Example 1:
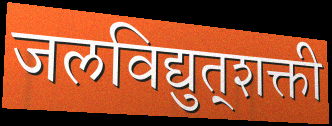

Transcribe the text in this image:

जलविद्युत्‌शक्ती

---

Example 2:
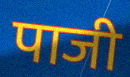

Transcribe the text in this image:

पाजी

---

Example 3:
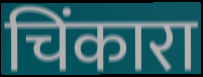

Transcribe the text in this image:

चिंकारा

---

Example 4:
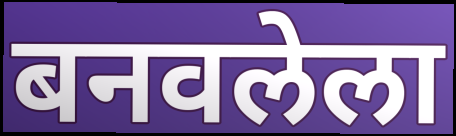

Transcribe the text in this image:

बनवलेला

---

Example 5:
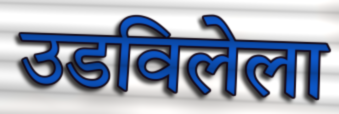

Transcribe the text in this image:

उडविलेला